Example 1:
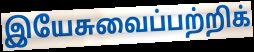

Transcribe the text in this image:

இயேசுவைப்பற்றிக்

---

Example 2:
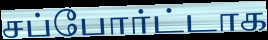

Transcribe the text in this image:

சப்போர்ட்டாக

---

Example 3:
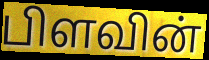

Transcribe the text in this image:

பிளவின்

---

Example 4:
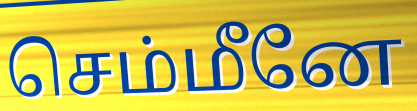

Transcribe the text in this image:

செம்மீனே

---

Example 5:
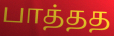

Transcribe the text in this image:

பாத்தத